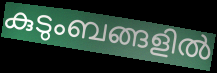
കുടുംബങ്ങളിൽ